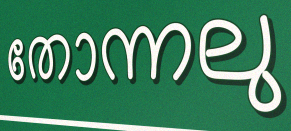
തോന്നലു